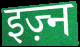
इज़्न